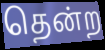
தென்ற